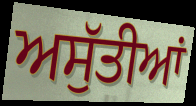
ਅਸੁੱਤੀਆਂ